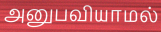
அனுபவியாமல்